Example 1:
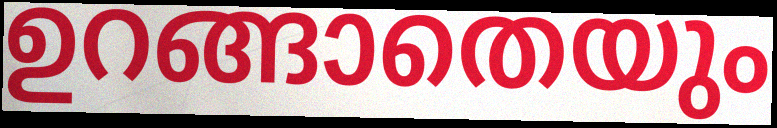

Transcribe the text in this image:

ഉറങ്ങാതെയും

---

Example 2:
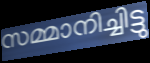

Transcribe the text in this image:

സമ്മാനിച്ചിട്ടു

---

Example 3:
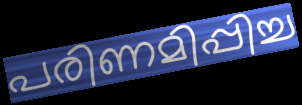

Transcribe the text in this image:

പരിണമിപ്പിച്ച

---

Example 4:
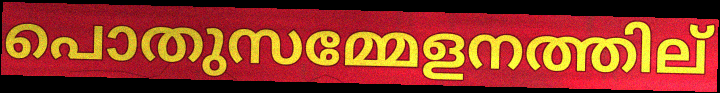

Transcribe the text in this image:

പൊതുസമ്മേളനത്തില്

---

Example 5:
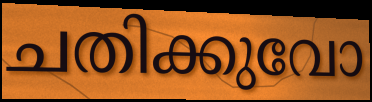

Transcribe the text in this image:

ചതിക്കുവോ